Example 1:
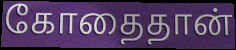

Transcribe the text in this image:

கோதைதான்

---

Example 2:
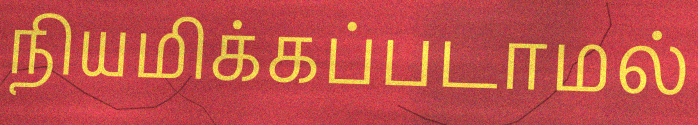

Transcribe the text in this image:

நியமிக்கப்படாமல்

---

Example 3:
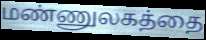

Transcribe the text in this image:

மண்ணுலகத்தை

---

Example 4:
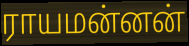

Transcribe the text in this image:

ராயமன்னன்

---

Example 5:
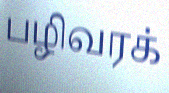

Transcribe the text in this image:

பழிவரக்